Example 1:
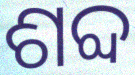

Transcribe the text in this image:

ଶବ୍ଦ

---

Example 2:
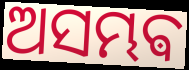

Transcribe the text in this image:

ଅସମ୍ଭଵ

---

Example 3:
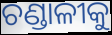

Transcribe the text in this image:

ଚଣ୍ଡାଳୀକୁ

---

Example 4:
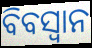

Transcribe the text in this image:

ବିବସ୍ୱାନ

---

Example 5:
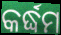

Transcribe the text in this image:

କର୍ଦ୍ଧମ